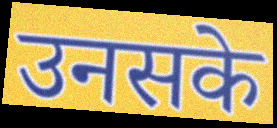
उनसके